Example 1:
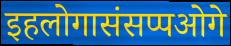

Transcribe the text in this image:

इहलोगासंसप्पओगे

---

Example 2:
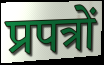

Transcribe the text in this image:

प्रपत्रों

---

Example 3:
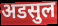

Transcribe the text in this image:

अडसुल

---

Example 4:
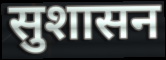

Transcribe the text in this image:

सुशासन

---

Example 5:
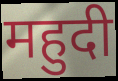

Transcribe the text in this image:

महुदी